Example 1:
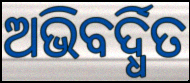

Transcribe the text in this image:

ଅଭିବର୍ଦ୍ଧିତ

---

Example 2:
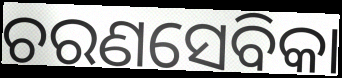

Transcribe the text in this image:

ଚରଣସେବିକା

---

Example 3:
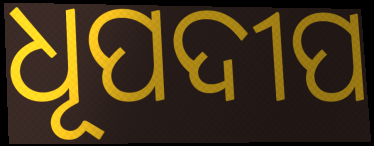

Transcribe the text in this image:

ଧୂପଦୀପ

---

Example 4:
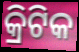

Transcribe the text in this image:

କ୍ରିଟିକ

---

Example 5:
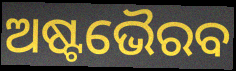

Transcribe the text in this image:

ଅଷ୍ଟଭୈରବ